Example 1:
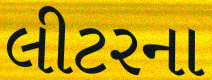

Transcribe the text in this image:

લીટરના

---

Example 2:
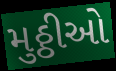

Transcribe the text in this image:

મુઠ્ઠીઓ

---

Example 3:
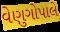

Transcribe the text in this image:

વેણુગોપાલે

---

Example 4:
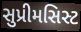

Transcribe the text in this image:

સુપ્રીમસિસ્ટ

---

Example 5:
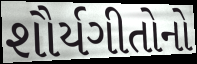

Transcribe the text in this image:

શૌર્યગીતોનો